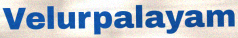
Velurpalayam